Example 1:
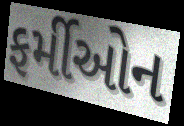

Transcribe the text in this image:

ફર્મીઓન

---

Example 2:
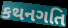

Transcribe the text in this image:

કથનગતિ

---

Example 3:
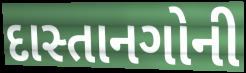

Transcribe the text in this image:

દાસ્તાનગોની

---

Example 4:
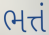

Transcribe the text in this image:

ભત્તં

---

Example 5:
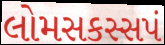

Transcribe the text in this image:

લોમસકસ્સપં